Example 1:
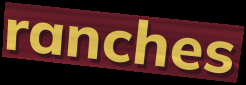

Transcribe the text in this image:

ranches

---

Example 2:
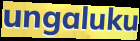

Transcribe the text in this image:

ungaluku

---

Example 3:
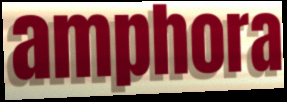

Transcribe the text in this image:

amphora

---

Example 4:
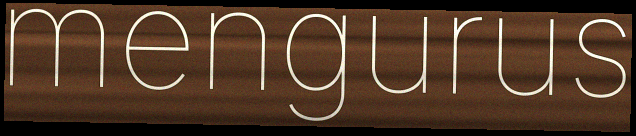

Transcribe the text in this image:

mengurus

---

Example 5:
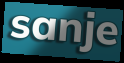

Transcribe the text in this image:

sanje